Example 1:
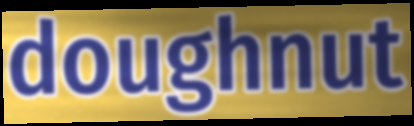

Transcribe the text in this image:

doughnut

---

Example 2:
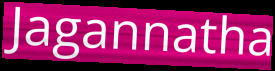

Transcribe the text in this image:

Jagannatha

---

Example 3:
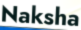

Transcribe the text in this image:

Naksha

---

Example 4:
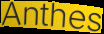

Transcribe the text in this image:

Anthes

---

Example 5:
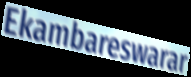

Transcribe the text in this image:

Ekambareswarar